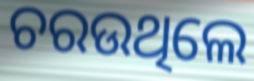
ଚରଉଥିଲେ